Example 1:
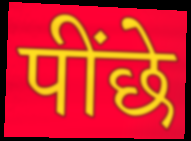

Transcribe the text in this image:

पींछे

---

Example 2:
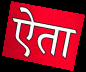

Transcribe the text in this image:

ऐता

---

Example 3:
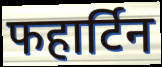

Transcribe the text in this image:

फहार्टिन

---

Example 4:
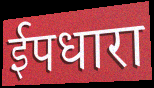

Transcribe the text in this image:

ईपधारा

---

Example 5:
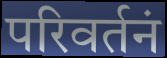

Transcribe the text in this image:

परिवर्तनं